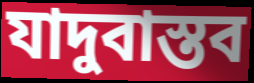
যাদুবাস্তব